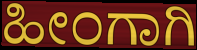
ಹೀಂಗಾಗಿ